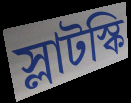
স্লাটস্কি